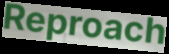
Reproach